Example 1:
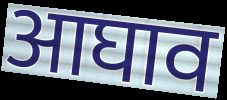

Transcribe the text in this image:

आघाव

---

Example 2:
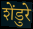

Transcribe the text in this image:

शेंडुरे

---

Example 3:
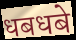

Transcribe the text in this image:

धबधबे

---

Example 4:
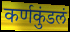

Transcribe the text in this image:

कर्णकुंडलं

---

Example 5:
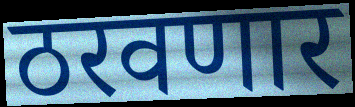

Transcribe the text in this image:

ठरवणार